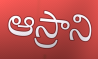
ఆస్రాని